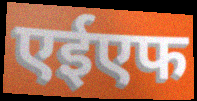
एईएफ